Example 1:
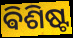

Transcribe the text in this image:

ଵିଶିଷ୍ଟ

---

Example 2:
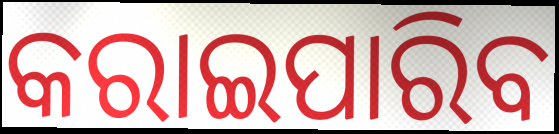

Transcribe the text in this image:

କରାଇପାରିବ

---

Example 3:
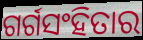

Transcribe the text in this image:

ଗର୍ଗସଂହିତାର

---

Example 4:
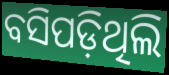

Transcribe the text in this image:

ବସିପଡ଼ିଥିଲି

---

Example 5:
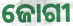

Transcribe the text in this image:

ଜୋଗୀ